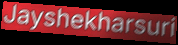
Jayshekharsuri